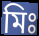
মিঃ